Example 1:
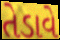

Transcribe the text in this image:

તેડાવે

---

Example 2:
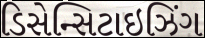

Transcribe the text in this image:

ડિસેન્સિટાઇઝિંગ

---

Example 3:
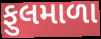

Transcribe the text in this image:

ફુલમાળા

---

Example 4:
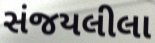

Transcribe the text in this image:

સંજયલીલા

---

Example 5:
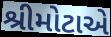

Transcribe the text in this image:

શ્રીમોટાએ